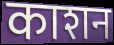
काशन